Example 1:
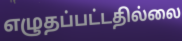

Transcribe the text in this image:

எழுதப்பட்டதில்லை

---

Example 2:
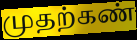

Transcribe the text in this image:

முதற்கண்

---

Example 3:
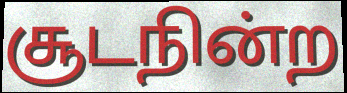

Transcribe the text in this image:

சூடநின்ற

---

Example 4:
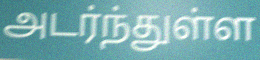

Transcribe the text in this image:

அடர்ந்துள்ள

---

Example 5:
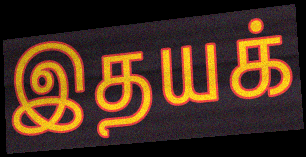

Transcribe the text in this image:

இதயக்